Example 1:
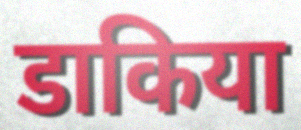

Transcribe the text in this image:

डाकिया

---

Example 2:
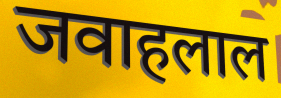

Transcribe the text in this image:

जवाहलाल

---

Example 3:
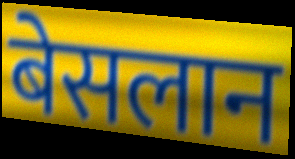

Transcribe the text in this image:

बेसलान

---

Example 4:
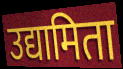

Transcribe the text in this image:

उद्यामिता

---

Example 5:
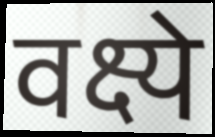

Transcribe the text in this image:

वक्ष्ये